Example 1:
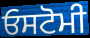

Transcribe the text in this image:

ਓਸਟੋਮੀ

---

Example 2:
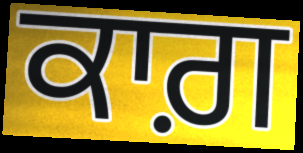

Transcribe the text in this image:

ਕਾਗ਼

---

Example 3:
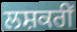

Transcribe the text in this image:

ਲਸ਼ਕਰੀਂ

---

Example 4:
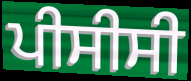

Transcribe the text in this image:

ਪੀਸੀਸੀ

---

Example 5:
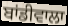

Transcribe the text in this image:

ਬਾਂਡੀਵਾਲਾ